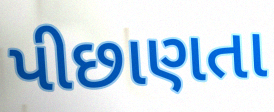
પીછાણતા